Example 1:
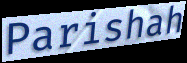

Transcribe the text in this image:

Parishah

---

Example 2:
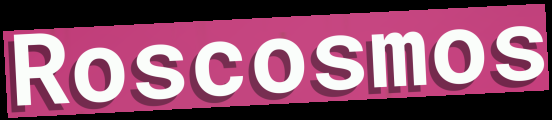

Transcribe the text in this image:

Roscosmos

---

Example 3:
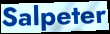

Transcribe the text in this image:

Salpeter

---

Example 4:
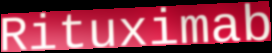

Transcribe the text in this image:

Rituximab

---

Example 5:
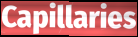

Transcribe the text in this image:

Capillaries